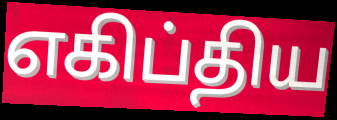
எகிப்திய